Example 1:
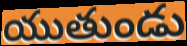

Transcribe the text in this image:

యుతుండు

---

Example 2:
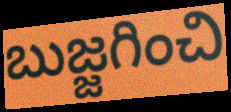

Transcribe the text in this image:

బుజ్జగించి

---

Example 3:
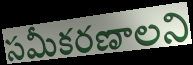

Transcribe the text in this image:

సమీకరణాలని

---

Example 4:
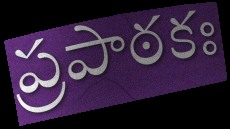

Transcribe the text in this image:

ప్రపాఠకః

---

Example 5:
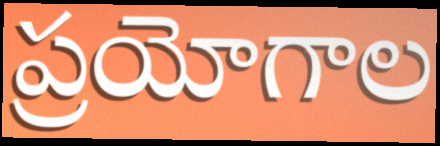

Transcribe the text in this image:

ప్రయోగాల